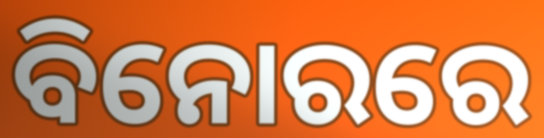
ବିନୋରରେ